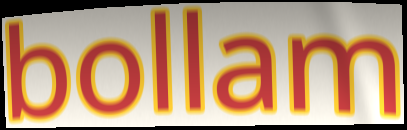
bollam